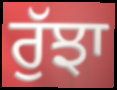
ਰੁੱਝਾ